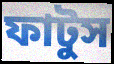
ফাটুস